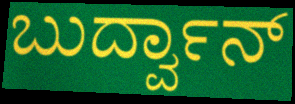
ಬುರ್ದ್ವಾನ್